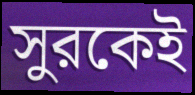
সুরকেই